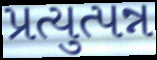
પ્રત્યુત્પન્ન